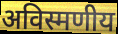
अविस्मणीय